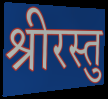
श्रीरस्तु